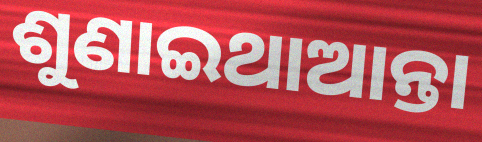
ଶୁଣାଇଥାଆନ୍ତା